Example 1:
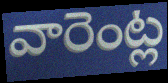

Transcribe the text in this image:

వారెంట్ల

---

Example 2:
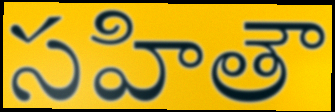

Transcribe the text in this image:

సహితౌ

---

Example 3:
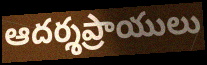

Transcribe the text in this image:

ఆదర్శప్రాయులు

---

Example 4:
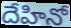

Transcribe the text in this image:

దేహినో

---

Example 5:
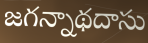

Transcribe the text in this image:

జగన్నాథదాసు